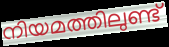
നിയമത്തിലുണ്ട്